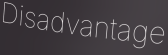
Disadvantage